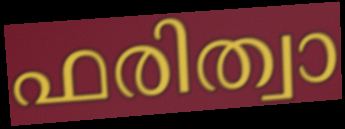
ഫരിത്വാ